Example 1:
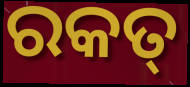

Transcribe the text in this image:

ରକତ୍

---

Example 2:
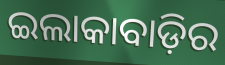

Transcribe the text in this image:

ଇଲାକାବାଡ଼ିର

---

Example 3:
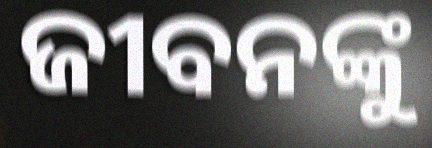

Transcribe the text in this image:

ଜୀବନଙ୍କୁ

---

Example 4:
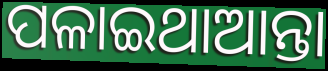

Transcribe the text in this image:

ପଳାଇଥାଆନ୍ତା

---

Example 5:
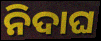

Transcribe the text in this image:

ନିଦାଘ